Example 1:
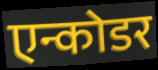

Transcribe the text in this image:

एन्कोडर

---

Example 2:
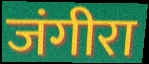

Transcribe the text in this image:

जंगीरा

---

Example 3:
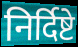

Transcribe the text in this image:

निर्दिष्टे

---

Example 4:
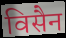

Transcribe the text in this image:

विसैन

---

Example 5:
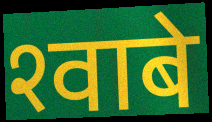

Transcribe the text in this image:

श्वाबे